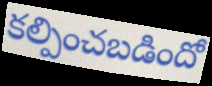
కల్పించబడిందో